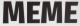
MEME